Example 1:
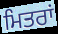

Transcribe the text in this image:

ਮਿਤਰਾਂ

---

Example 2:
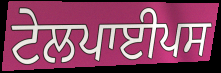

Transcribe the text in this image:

ਟੇਲਪਾਈਪਸ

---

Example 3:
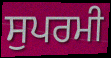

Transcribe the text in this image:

ਸੁਪਰਮੀ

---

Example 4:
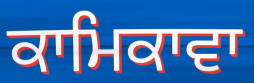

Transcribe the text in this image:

ਕਾਮਿਕਾਵਾ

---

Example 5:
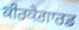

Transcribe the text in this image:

ਕੀਰਕੇਗਾਰਡ